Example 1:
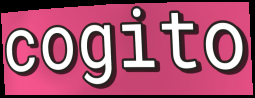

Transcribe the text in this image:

cogito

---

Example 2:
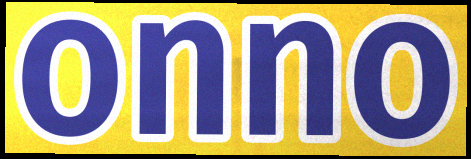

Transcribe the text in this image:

onno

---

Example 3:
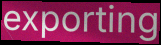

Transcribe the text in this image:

exporting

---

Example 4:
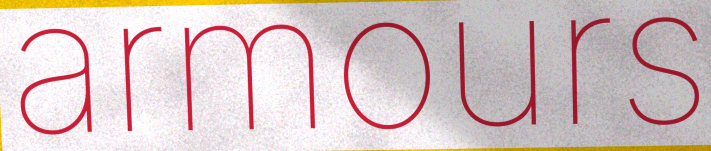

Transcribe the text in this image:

armours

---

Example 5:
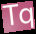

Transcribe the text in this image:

Tq